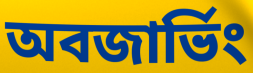
অবজার্ভিং